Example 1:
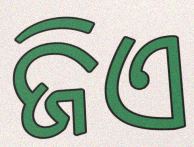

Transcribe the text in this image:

ଜିଏ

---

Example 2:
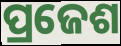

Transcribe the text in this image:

ପ୍ରଜେଶ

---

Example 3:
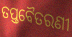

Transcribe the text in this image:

ତପ୍ତବୈତରଣୀ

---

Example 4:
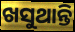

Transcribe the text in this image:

ଖସୁଥାନ୍ତି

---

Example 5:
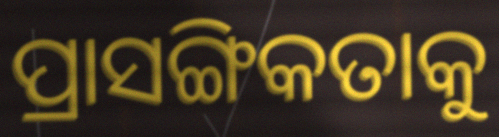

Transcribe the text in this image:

ପ୍ରାସଙ୍ଗିକତାକୁ